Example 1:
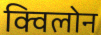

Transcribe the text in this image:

क्विलोन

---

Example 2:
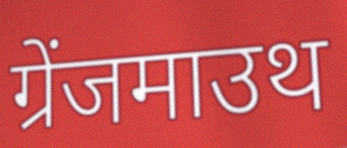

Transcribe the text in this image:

ग्रेंजमाउथ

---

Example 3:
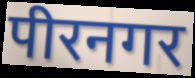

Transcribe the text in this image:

पीरनगर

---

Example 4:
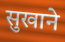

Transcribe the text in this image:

सुखाने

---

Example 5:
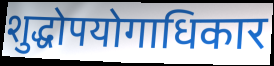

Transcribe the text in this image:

शुद्धोपयोगाधिकार